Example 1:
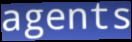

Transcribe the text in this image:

agents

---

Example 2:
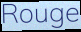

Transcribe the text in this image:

Rouge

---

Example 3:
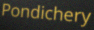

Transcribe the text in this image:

Pondichery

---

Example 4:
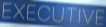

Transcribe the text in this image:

EXECUTIVE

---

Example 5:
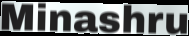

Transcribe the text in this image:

Minashru